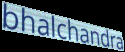
bhalchandra